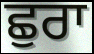
ਛੁਰਾ